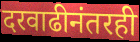
दरवाढीनंतरही